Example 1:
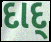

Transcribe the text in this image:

દાદ્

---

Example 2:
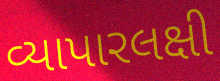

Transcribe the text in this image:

વ્યાપારલક્ષી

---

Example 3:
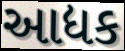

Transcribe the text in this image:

આદ્યક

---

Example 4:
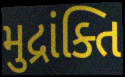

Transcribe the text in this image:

મુદ્રાંક્તિ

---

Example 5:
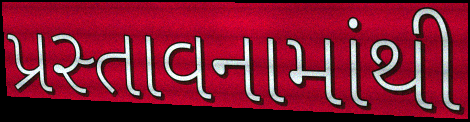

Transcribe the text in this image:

પ્રસ્તાવનામાંથી